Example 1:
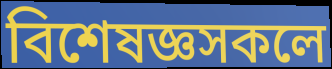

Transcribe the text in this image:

বিশেষজ্ঞসকলে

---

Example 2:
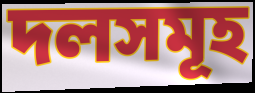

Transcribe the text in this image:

দলসমূহ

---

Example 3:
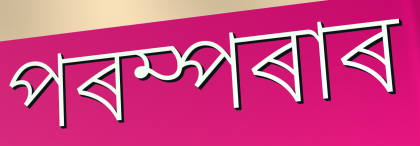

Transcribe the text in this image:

পৰম্পৰাৰ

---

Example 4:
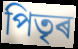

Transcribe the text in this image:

পিতৃৰ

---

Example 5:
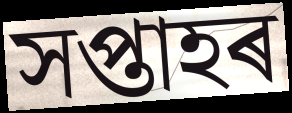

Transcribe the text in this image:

সপ্তাহৰ